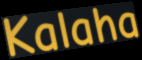
Kalaha